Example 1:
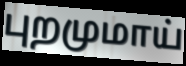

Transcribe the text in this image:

புறமுமாய்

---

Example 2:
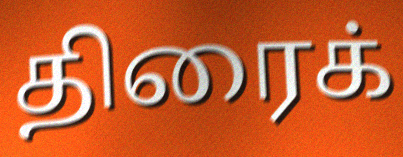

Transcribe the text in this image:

திரைக்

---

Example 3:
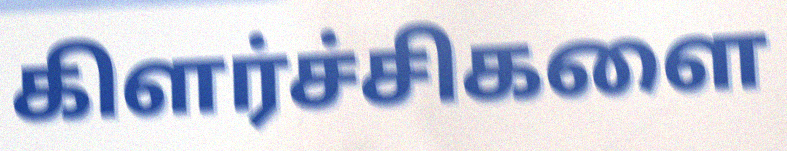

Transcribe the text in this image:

கிளர்ச்சிகளை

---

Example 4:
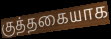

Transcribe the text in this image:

குத்தகையாக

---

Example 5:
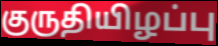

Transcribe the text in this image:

குருதியிழப்பு